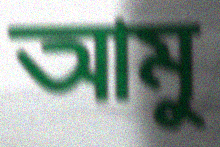
আমু